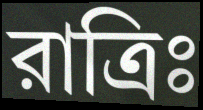
রাত্রিঃ